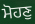
ਮੋਹਣੁ